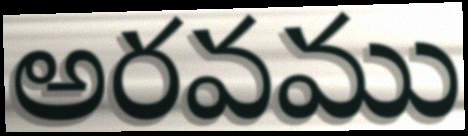
అరవము